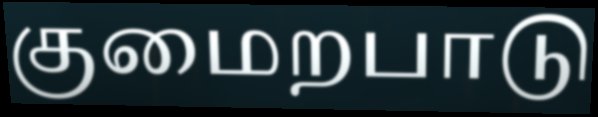
குமைறபாடு